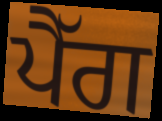
ਪੈੱਗ